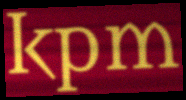
kpm